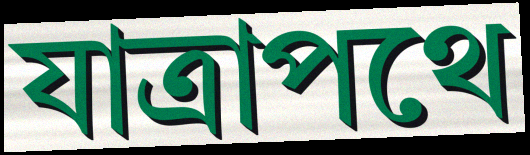
যাত্রাপথে